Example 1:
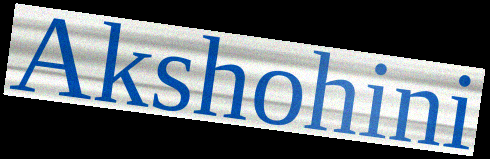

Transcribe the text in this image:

Akshohini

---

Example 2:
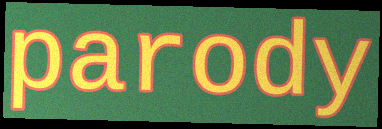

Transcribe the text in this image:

parody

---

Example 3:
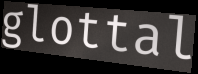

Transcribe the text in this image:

glottal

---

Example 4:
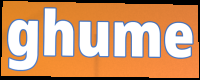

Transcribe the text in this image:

ghume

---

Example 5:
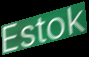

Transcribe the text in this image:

Estok